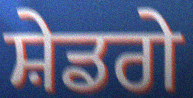
ਸ਼ੇਡਗੇ